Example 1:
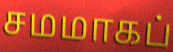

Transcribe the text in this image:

சமமாகப்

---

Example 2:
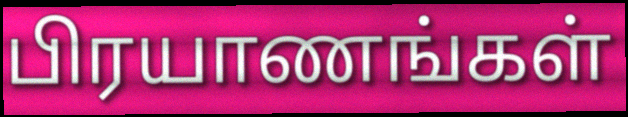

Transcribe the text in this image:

பிரயாணங்கள்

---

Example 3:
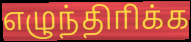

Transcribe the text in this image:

எழுந்திரிக்க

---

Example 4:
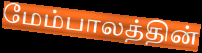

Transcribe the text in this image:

மேம்பாலத்தின்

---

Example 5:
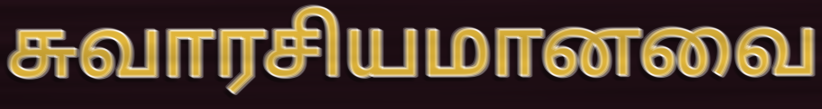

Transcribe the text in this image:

சுவாரசியமானவை